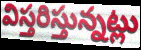
విస్తరిస్తున్నట్లు